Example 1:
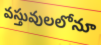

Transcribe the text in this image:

వస్తువులలోనూ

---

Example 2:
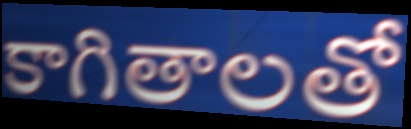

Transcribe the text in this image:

కాగితాలతో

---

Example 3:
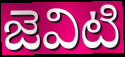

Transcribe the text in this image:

జెవిటి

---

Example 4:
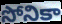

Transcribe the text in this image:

సోనికా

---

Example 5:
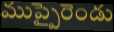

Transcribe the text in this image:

ముప్పైరెండు